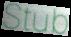
Stub